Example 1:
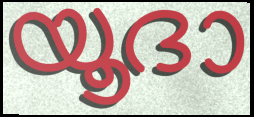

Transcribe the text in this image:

യൂദാ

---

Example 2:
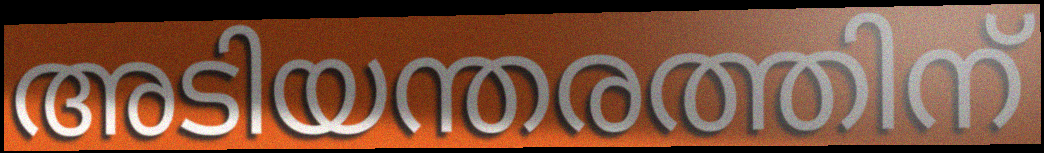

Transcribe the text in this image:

അടിയന്തരത്തിന്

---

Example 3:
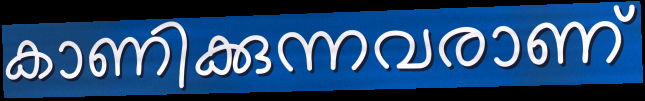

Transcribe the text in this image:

കാണിക്കുന്നവരാണ്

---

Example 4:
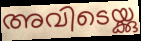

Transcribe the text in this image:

അവിടെയ്ക്കു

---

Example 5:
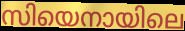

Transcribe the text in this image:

സിയെനായിലെ